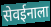
सेवईनाला